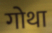
गोथा